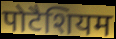
पोटैशियम